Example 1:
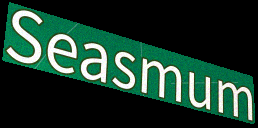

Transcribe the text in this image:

Seasmum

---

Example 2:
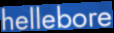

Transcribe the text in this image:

hellebore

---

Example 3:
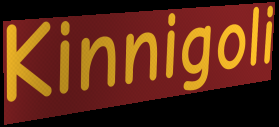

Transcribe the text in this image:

Kinnigoli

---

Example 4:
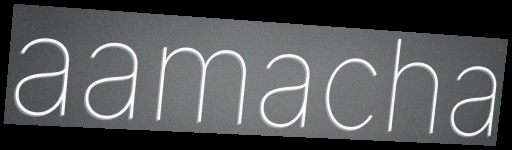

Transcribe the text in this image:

aamacha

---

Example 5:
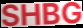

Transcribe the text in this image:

SHBG